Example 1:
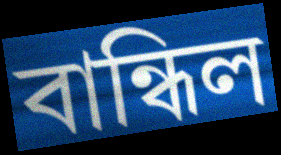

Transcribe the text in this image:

বান্ধিল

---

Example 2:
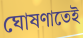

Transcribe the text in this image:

ঘোষণাতেই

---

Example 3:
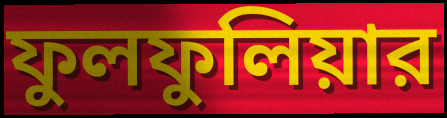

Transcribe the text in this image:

ফুলফুলিয়ার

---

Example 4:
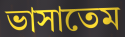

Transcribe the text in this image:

ভাসাতেম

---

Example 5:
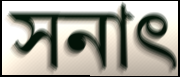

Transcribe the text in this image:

সনাৎ